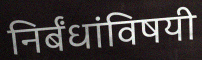
निर्बंधांविषयी